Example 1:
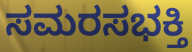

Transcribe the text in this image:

ಸಮರಸಭಕ್ತಿ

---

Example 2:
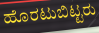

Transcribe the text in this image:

ಹೊರಟುಬಿಟ್ಟರು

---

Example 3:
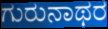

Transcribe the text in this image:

ಗುರುನಾಥರ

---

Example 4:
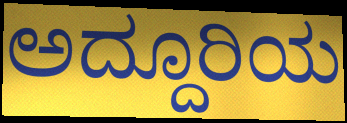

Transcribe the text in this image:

ಅದ್ದೂರಿಯ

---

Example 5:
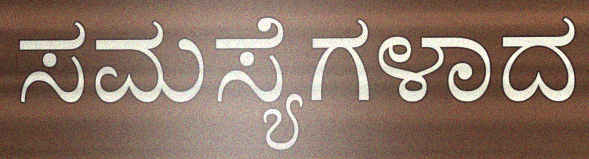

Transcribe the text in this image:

ಸಮಸ್ಯೆಗಳಾದ